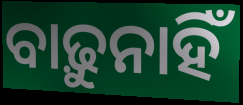
ବାଢ଼ୁନାହିଁ